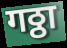
गठ्ठा